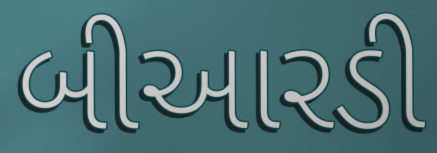
બીઆરડી